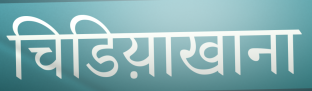
चिडिय़ाखाना